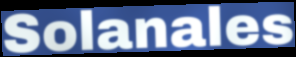
Solanales